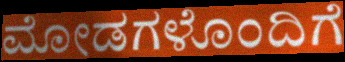
ಮೋಡಗಳೊಂದಿಗೆ